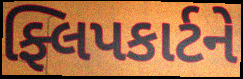
ફ્લિપકાર્ટને